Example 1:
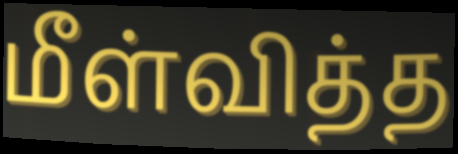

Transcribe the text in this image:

மீள்வித்த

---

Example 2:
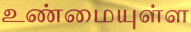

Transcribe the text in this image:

உண்மையுள்ள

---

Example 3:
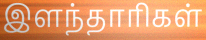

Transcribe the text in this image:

இளந்தாரிகள்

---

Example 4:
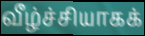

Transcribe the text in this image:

வீழ்ச்சியாகக்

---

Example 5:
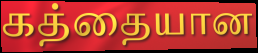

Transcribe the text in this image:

கத்தையான